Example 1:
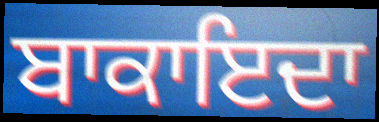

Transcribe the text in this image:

ਬਾਕਾਇਦਾ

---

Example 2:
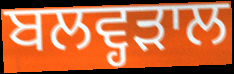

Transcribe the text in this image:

ਬਲਵ੍ਹੜਾਲ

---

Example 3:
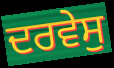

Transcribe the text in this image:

ਦਰਵੇਸੁ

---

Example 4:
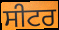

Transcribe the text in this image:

ਸੀਟਰ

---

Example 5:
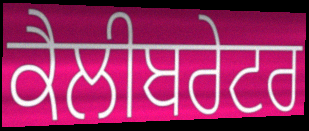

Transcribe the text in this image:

ਕੈਲੀਬਰੇਟਰ